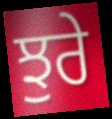
ਝੁਰੇ